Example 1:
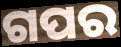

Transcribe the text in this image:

ଗପର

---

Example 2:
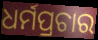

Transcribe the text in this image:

ଧର୍ମପ୍ରଚାର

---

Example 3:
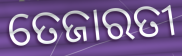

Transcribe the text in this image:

ତେଜାରତୀ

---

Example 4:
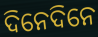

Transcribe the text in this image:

ଦିନେଦିନେ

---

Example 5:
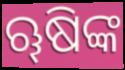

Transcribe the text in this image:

ୠଷିଙ୍କ